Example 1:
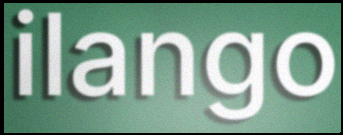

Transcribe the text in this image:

ilango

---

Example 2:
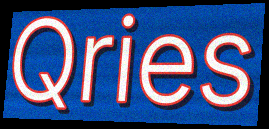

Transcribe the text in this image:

Qries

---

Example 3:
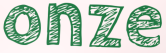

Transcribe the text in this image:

onze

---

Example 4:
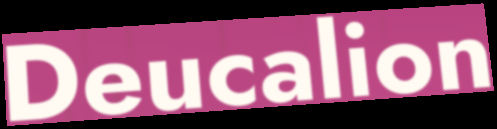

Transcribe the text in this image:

Deucalion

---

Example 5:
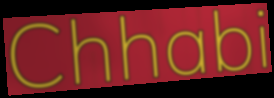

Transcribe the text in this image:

Chhabi